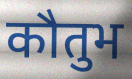
कौतुभ